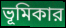
ভূমিকার